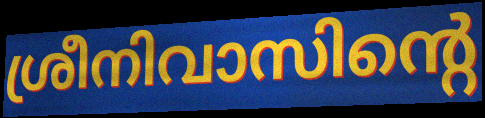
ശ്രീനിവാസിന്റെ